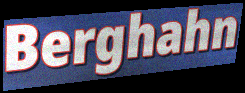
Berghahn